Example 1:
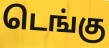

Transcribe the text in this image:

டெங்கு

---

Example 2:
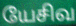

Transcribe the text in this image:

யேசிவ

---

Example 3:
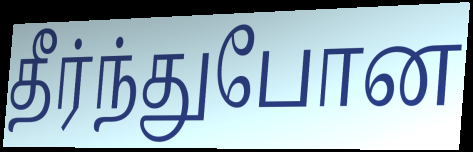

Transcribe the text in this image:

தீர்ந்துபோன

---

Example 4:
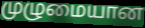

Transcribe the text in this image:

முழுமையான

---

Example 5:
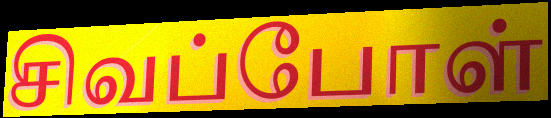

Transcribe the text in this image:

சிவப்போள்